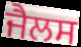
ਜੈਲਸ